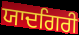
ਯਾਦਗਿਰੀ